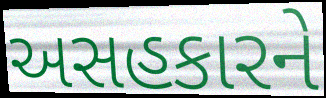
અસહકારને